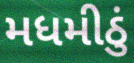
મધમીઠું